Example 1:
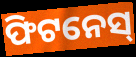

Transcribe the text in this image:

ଫିଟନେସ୍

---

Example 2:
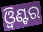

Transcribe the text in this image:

ଓ୍ଵିଣ୍ଟର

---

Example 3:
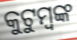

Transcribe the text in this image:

କୁଟୁମ୍ବଙ୍କ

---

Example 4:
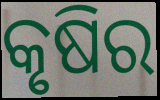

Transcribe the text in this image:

କୃଷିର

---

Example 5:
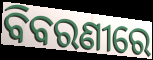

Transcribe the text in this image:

ବିବରଣୀରେ